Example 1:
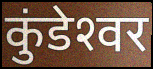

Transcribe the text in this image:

कुंडेश्वर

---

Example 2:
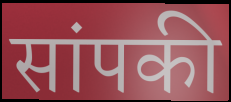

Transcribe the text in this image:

सांपकी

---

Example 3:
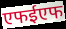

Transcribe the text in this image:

एफईएफ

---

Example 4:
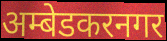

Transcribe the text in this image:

अम्बेडकरनगर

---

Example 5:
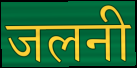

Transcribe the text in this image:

जलनी